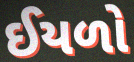
ઈયળો